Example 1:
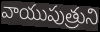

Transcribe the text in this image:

వాయుపుత్రుని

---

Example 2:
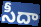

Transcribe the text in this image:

సీదా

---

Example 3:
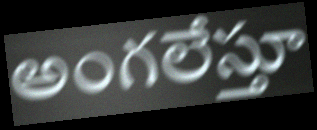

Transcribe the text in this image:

అంగలేస్తూ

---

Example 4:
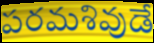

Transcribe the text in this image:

పరమశివుడే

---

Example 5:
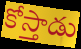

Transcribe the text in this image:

కోస్తాడు